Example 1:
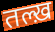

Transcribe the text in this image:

तल्ख़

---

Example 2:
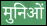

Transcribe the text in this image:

मुनिओं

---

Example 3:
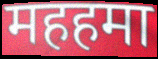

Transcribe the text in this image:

महहमा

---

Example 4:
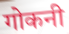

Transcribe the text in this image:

गोकनी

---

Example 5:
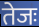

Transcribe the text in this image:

तेजः